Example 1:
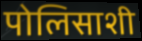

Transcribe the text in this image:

पोलिसाशी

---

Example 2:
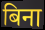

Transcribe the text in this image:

बिना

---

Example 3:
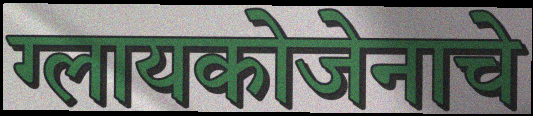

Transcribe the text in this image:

ग्लायकोजेनाचे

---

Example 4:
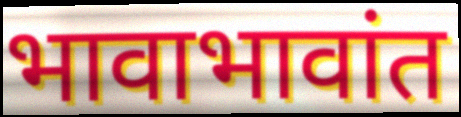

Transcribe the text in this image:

भावाभावांत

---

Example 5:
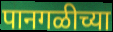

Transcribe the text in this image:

पानगळीच्या